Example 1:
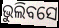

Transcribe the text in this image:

ଭୁଲିବସେ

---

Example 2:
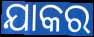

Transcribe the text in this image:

ଯାକର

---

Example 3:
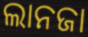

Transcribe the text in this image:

ଲାନଜା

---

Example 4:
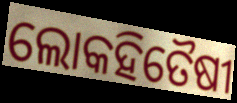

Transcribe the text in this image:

ଲୋକହିତୈଷୀ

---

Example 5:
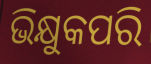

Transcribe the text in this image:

ଭିକ୍ଷୁକପରି